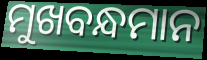
ମୁଖବନ୍ଧମାନ